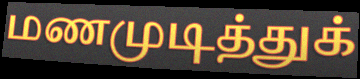
மணமுடித்துக்